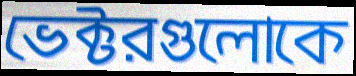
ভেক্টরগুলোকে